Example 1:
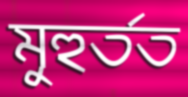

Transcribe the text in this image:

মুহুৰ্তত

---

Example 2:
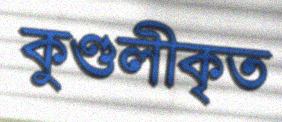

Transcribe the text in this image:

কুণ্ডলীকৃত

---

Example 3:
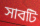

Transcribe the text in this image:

সাবটি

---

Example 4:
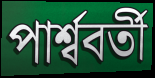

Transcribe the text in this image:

পাৰ্শ্ববৰ্তী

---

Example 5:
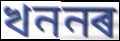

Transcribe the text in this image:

খননৰ